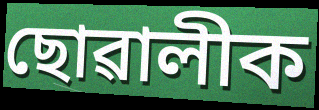
ছোৱালীক